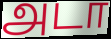
அடா